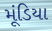
મૂંડિયા